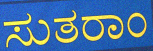
ಸುತರಾಂ